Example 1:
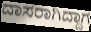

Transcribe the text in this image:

ದಾಸರಾಗಿದ್ದಾಗ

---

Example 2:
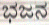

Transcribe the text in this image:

ಭಜನ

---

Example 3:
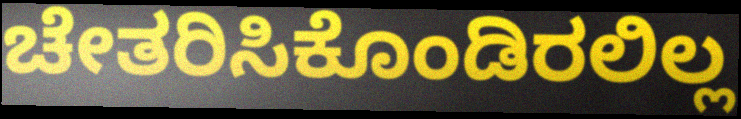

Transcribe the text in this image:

ಚೇತರಿಸಿಕೊಂಡಿರಲಿಲ್ಲ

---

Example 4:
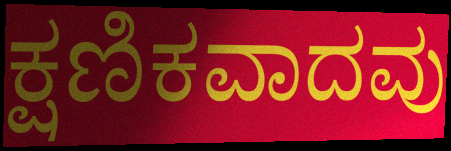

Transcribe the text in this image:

ಕ್ಷಣಿಕವಾದವು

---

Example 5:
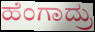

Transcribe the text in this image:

ಹೆಂಗಾದ್ರು